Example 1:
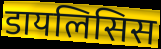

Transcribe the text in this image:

डायलिसिस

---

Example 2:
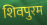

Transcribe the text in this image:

शिवपुरम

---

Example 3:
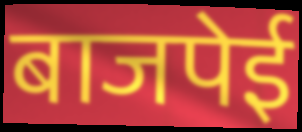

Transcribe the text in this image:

बाजपेई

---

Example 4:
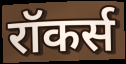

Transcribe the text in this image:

रॉकर्स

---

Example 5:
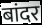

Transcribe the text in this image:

बांदर